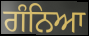
ਗੰਨਿਆ